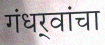
गंधर्वांचा